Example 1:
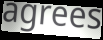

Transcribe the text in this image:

agrees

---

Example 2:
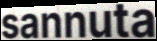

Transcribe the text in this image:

sannuta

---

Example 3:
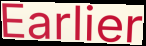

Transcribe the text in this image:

Earlier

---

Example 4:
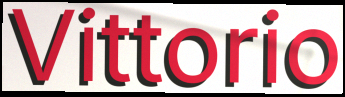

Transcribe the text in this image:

Vittorio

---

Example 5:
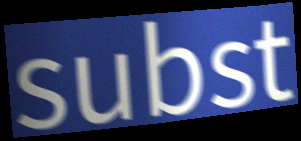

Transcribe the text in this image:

subst